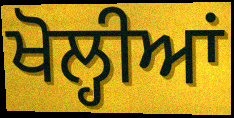
ਖੋਲ੍ਹੀਆਂ